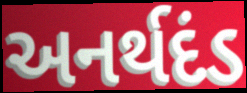
અનર્થદંડ